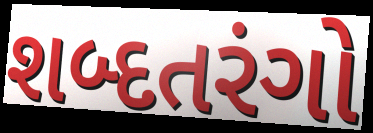
શબ્દતરંગો